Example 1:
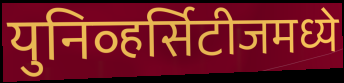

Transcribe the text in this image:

युनिव्हर्सिटीजमध्ये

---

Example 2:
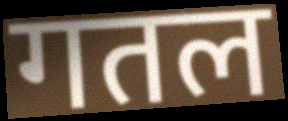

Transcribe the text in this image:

गतल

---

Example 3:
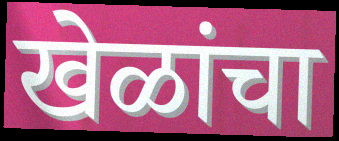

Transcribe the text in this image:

खेळांचा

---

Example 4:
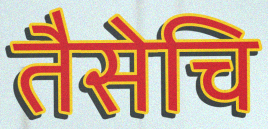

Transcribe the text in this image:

तैसेचि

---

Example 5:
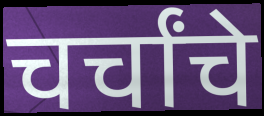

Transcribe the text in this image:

चर्चांचे